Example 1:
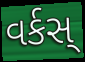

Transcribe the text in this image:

વર્કસ્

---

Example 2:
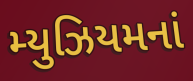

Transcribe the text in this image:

મ્યુઝિયમનાં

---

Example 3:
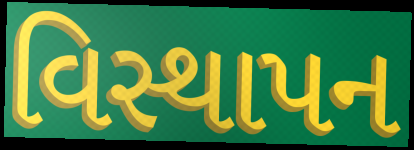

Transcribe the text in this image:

વિસ્થાપન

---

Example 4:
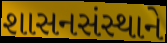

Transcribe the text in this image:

શાસનસંસ્થાને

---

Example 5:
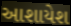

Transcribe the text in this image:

આશાયેશ